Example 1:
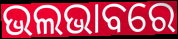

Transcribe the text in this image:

ଭଲଭାବରେ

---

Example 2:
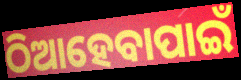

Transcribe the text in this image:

ଠିଆହେବାପାଇଁ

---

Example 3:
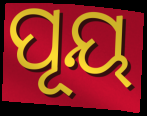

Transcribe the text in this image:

ପୂୟ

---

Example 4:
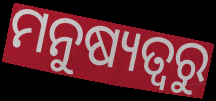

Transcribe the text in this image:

ମନୁଷ୍ୟତ୍ୱରୁ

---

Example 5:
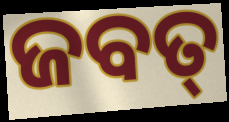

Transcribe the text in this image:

ଜବତ୍